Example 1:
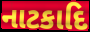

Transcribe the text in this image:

નાટકાદિ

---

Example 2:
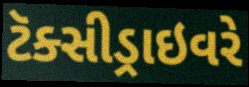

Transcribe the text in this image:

ટૅક્સીડ્રાઇવરે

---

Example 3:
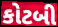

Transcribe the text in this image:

કોટબી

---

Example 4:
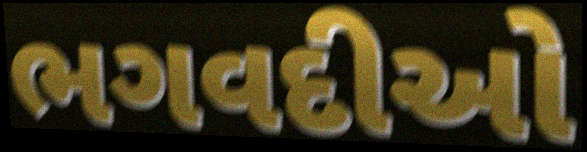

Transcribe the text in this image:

ભગવદીઓ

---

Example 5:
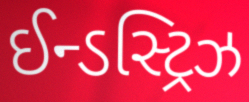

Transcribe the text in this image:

ઈન્ડસ્ટ્રિઝ